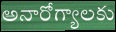
అనారోగ్యాలకు